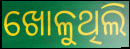
ଖୋଳୁଥିଲି